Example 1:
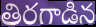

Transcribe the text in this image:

తిరగాడిన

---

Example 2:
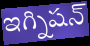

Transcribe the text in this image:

ఇగ్నిషన్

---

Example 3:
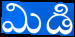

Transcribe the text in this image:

మిడి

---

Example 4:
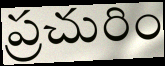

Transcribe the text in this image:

ప్రచురిం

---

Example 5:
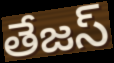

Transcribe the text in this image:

తేజస్